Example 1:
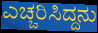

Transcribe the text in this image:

ಎಚ್ಚರಿಸಿದ್ದನು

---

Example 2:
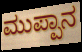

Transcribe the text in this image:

ಮುಪ್ಪಾನ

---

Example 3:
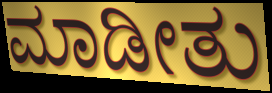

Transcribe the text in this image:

ಮಾಡೀತು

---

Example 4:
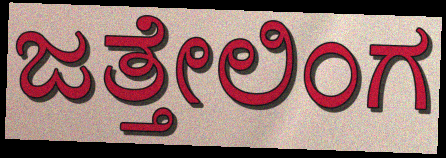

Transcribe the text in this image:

ಜತ್ತೇಲಿಂಗ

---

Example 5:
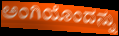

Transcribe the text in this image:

ಅಂಗಿಯೊಂದನ್ನು